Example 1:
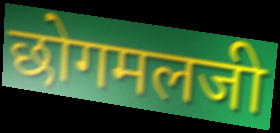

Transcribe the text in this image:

छोगमलजी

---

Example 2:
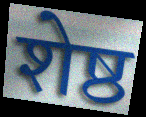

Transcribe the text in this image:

शेष्ठ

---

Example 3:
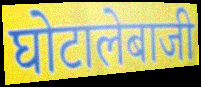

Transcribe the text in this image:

घोटालेबाजी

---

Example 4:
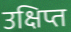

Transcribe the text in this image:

उक्षिप्त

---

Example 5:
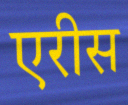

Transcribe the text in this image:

एरीस